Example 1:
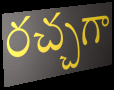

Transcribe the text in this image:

రచ్చగా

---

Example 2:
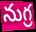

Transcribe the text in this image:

నుగ్ర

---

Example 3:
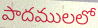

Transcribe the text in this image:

పాదములలో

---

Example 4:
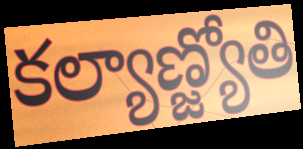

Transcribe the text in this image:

కల్యాణ్జ్యోతి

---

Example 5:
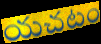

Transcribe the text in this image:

యచటం